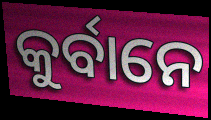
କୁର୍ବାନେ